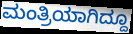
ಮಂತ್ರಿಯಾಗಿದ್ದೂ